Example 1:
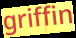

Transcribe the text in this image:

griffin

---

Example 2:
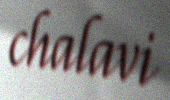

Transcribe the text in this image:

chalavi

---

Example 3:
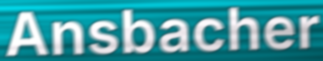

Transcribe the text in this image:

Ansbacher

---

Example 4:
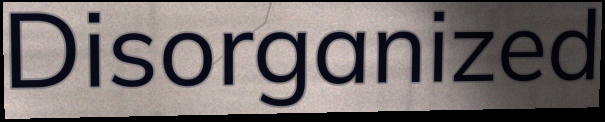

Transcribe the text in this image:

Disorganized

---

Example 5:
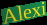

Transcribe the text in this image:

Alexi